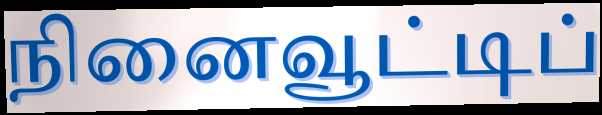
நினைவூட்டிப்